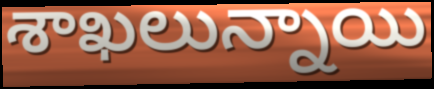
శాఖలున్నాయి